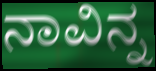
ನಾವಿನ್ನ